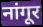
नांगूर